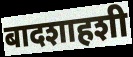
बादशाहशी